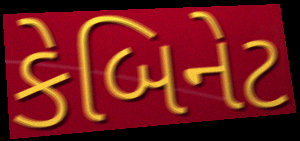
કેબિનેટ